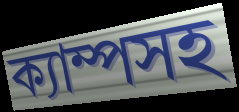
ক্যাম্পসহ